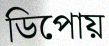
ডিপোয়